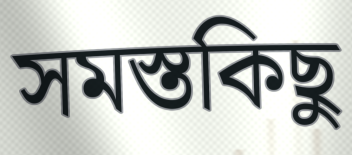
সমস্তকিছু